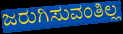
ಜರುಗಿಸುವಂತಿಲ್ಲ